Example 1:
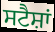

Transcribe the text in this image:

ਸਟੈਸ਼ਾਂ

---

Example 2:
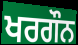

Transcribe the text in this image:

ਖਰਗੌਨ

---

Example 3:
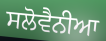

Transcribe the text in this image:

ਸਲੋਵੈਨੀਆ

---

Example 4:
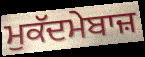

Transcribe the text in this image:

ਮੁਕੱਦਮੇਬਾਜ਼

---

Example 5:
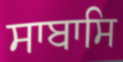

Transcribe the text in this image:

ਸਾਬਾਸਿ